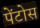
पेंटोस